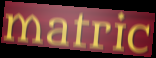
matric